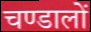
चण्डालों